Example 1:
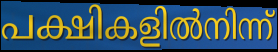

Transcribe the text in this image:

പക്ഷികളിൽനിന്ന്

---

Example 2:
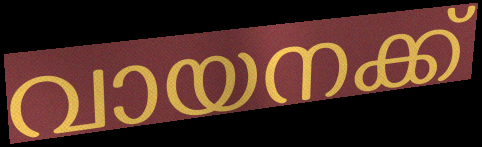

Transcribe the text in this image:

വായനക്ക്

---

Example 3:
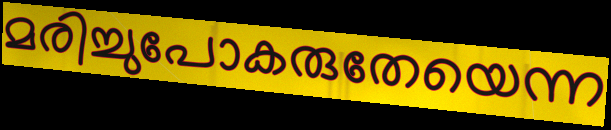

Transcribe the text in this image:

മരിച്ചുപോകരുതേയെന്ന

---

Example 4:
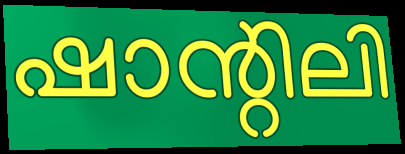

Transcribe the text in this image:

ഷാന്റിലി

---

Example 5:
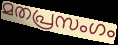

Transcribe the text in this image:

മതപ്രസംഗം